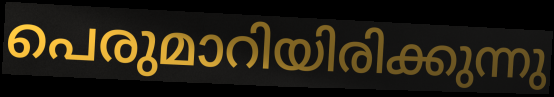
പെരുമാറിയിരിക്കുന്നു